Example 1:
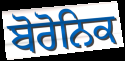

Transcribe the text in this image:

ਬੋਰੋਨਿਕ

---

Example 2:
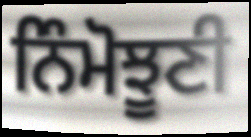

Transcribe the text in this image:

ਨਿੰਮੋਝੂਣੀ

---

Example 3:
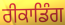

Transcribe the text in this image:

ਰੀਕਾਡਿੰਗ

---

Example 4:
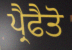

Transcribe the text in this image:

ਪ੍ਰੈਫੈਤੋ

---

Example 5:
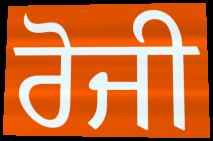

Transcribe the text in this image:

ਰੋਜੀ